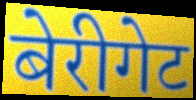
बेरीगेट